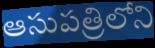
ఆసుపత్రిలోని